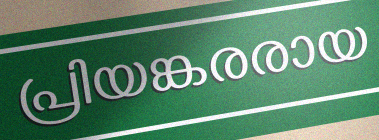
പ്രിയങ്കരരായ